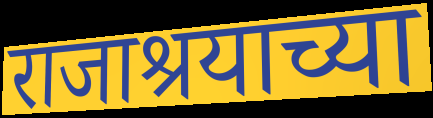
राजाश्रयाच्या